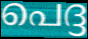
പെദ്ദ